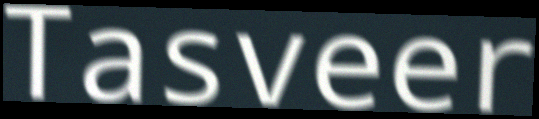
Tasveer